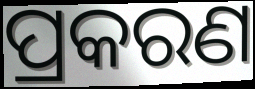
ପ୍ରକରଣ